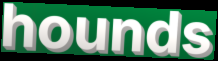
hounds